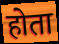
होता